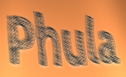
Phula